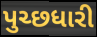
પુચ્છધારી